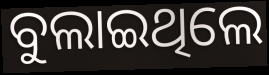
ବୁଲାଇଥିଲେ